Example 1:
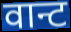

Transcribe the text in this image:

वान्ट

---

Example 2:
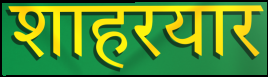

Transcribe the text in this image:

शाहरयार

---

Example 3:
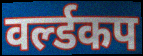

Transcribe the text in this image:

वर्ल्डकप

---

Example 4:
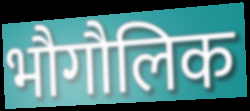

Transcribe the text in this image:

भौगौलिक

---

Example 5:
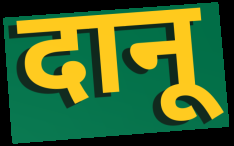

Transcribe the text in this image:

दानू